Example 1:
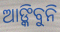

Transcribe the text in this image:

ଆଙ୍କିବୁନି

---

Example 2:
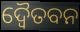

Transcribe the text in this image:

ଦ୍ବୈତବନ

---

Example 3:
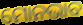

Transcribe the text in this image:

ମୋନଭାବ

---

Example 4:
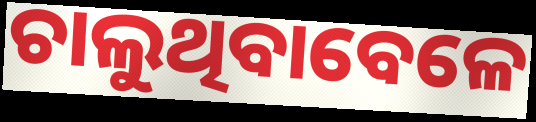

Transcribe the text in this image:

ଚାଲୁଥିବାବେଳେ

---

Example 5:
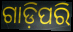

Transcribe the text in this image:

ଗାଡ଼ିପରି